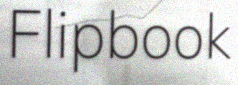
Flipbook